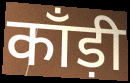
काँड़ी